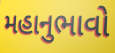
મહાનુભાવો